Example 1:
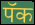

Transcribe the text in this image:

पॅक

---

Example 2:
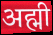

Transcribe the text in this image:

अह्मी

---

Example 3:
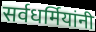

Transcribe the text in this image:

सर्वधर्मियांनी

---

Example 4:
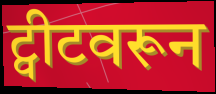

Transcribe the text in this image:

ट्वीटवरून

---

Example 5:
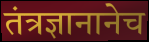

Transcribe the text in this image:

तंत्रज्ञानानेच